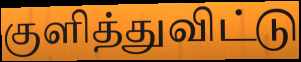
குளித்துவிட்டு